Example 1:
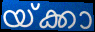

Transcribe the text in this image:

യ്‌ക്കാ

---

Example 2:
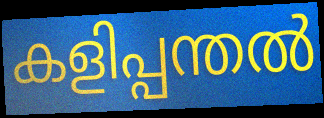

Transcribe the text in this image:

കളിപ്പന്തൽ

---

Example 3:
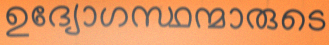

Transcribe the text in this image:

ഉദ്യോഗസ്ഥന്മാരുടെ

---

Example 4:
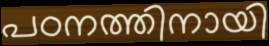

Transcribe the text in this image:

പഠനത്തിനായി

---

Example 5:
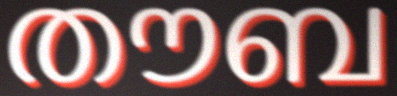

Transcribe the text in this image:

തൗബ